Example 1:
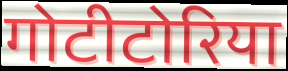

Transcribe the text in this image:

गोटीटोरिया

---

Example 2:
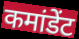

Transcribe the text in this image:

कमांडेंट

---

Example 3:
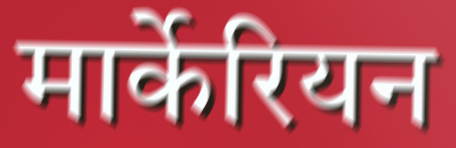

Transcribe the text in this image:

मार्केरियन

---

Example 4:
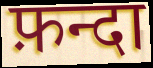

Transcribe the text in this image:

फ़न्दा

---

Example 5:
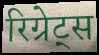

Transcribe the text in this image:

रिग्रेट्स